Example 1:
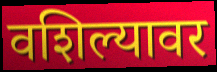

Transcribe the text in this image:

वशिल्यावर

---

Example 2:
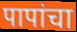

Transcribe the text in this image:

पापांचा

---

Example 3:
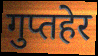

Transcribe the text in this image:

गुप्तहेर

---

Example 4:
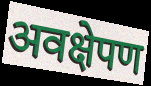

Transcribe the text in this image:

अवक्षेपण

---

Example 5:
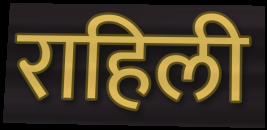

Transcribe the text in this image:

राहिली